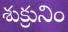
శుక్రునిం